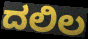
ದಲಿಲ